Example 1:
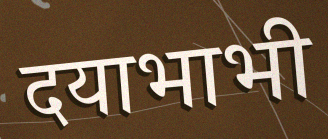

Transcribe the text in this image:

दयाभाभी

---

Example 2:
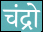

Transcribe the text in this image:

चंद्रो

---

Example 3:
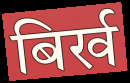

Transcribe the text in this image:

बिर्ख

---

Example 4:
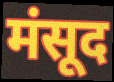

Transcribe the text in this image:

मंसूद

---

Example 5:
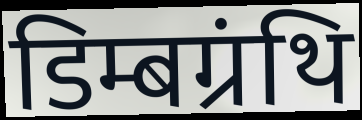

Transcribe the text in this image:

डिम्बग्रंथि